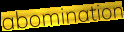
abomination